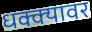
धक्क्यावर